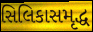
સિલિકાસમૃદ્ધ